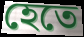
হেতে